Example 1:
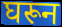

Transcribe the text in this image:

घरून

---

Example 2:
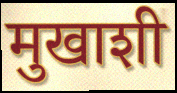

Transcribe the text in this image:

मुखाशी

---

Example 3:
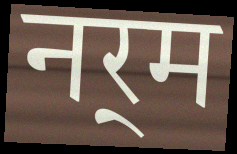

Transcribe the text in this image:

नर्म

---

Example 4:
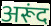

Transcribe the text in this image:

अरूंद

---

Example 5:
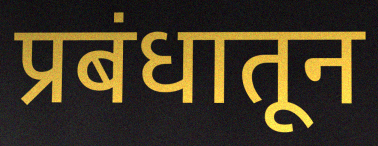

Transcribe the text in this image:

प्रबंधातून